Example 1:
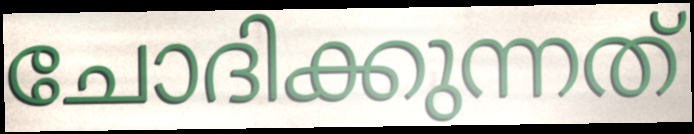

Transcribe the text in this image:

ചോദിക്കുന്നത്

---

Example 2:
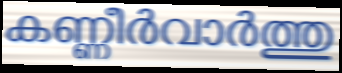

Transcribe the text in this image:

കണ്ണീർവാർത്തു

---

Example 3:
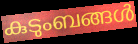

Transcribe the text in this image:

കുടുംബങ്ങൾ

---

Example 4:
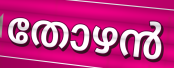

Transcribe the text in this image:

തോഴൻ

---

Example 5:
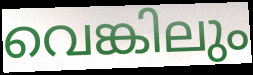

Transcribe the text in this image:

വെങ്കിലും